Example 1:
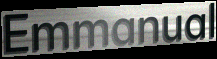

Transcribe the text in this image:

Emmanual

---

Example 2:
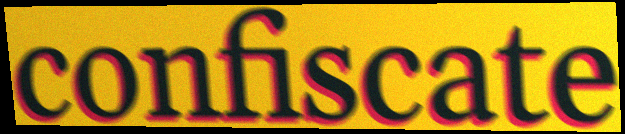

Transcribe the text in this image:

confiscate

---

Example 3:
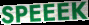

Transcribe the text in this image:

SPEEEK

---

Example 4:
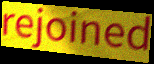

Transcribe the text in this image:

rejoined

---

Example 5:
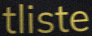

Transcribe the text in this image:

tliste